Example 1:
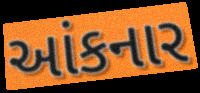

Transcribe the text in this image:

આંકનાર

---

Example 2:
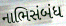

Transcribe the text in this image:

નાભિસંબંધ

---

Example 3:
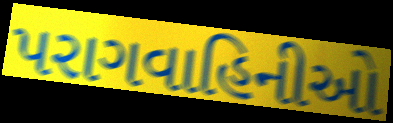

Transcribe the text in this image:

પરાગવાહિનીઓ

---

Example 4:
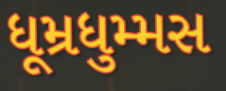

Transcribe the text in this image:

ધૂમ્રધુમ્મસ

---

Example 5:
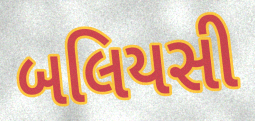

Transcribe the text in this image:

બલિયસી